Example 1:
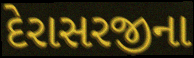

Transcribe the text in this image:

દેરાસરજીના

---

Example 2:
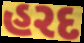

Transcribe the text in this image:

હરદ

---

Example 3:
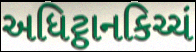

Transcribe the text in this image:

અધિટ્ઠાનકિચ્ચં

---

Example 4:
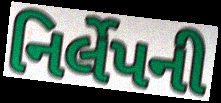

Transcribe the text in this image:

નિર્લેપની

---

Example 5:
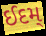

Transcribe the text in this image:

ઈદમ્